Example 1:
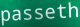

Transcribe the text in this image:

passeth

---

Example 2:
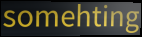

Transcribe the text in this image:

somehting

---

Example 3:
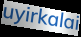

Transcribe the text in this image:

uyirkalai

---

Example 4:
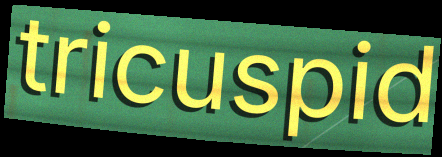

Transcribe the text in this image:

tricuspid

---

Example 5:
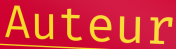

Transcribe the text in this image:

Auteur